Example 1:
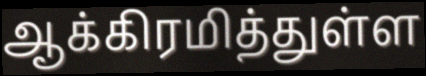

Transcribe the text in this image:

ஆக்கிரமித்துள்ள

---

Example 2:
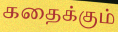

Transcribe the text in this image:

கதைக்கும்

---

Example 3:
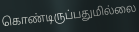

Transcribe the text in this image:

கொண்டிருப்பதுமில்லை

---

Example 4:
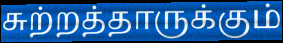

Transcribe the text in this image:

சுற்றத்தாருக்கும்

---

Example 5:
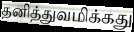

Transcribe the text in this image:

தனித்துவமிக்கது